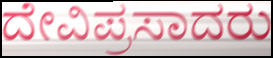
ದೇವಿಪ್ರಸಾದರು